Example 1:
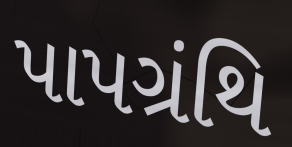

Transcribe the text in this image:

પાપગ્રંથિ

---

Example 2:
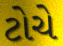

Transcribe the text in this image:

ટોચે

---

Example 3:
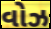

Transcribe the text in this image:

વોઝ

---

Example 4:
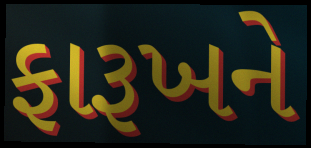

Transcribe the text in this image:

ફારૂખને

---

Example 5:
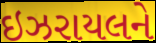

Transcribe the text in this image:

ઇઝરાયલને